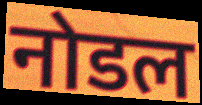
नोडल